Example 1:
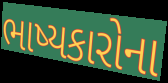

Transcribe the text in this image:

ભાષ્યકારોના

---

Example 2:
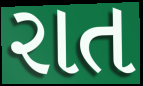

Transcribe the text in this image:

રાત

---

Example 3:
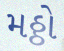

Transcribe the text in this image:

મઠ્ઠો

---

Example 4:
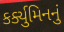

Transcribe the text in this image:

કર્ક્યુમિનનું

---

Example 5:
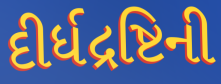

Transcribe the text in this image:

દીર્ધદ્રષ્ટિની